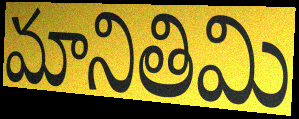
మానితిమి